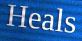
Heals